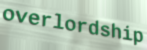
overlordship